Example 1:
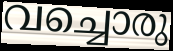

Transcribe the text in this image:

വച്ചൊരു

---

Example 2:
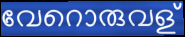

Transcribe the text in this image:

വേറൊരുവള്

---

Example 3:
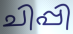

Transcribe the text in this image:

ചിപ്പി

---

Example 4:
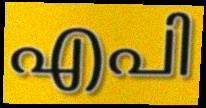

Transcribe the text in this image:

എപി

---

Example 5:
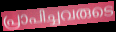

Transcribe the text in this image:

പ്രാപിച്ചവരുടെ